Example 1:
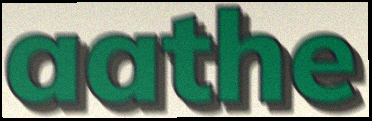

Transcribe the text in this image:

aathe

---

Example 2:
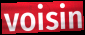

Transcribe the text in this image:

voisin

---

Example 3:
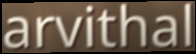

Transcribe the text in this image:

arvithal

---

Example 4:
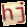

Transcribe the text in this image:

hj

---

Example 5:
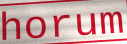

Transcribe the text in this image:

horum